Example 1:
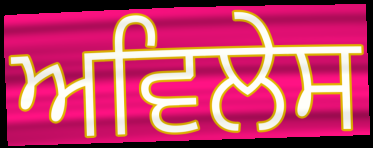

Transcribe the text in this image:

ਅਵਿਲੇਸ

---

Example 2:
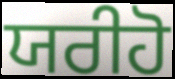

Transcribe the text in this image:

ਯਰੀਹੋ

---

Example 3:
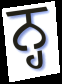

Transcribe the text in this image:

ਨ੍ਹ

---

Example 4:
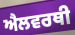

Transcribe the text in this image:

ਐਲਵਰਥੀ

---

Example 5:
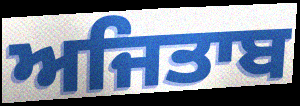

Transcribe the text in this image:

ਅਜਿਤਾਬ